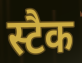
स्टैक